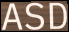
ASD